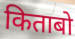
किताबो